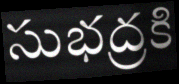
సుభద్రకి